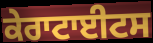
ਕੇਰਾਟਾਈਟਸ